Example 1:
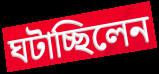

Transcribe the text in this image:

ঘটাচ্ছিলেন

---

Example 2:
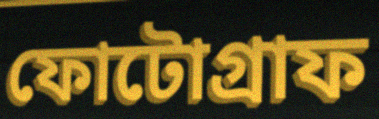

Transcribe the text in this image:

ফোটোগ্রাফ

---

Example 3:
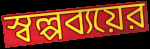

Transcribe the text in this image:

স্বল্পব্যয়ের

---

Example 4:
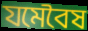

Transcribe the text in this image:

যমেবৈষ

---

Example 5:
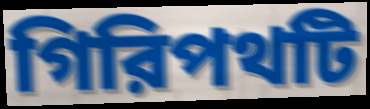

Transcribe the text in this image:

গিরিপথটি